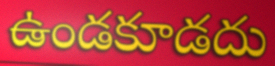
ఉండకూడదు